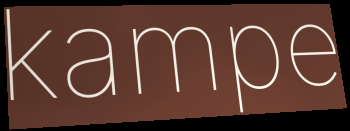
kampe